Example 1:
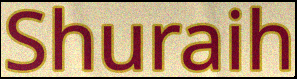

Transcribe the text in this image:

Shuraih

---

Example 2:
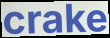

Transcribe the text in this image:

crake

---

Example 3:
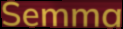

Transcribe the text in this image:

Semma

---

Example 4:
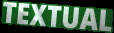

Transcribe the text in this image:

TEXTUAL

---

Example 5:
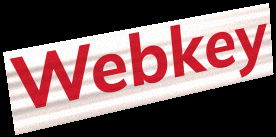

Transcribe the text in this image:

Webkey